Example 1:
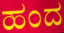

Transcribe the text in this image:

ಹಂದ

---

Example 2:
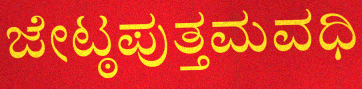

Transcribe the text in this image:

ಜೇಟ್ಠಪುತ್ತಮವಧಿ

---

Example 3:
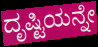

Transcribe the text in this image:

ದೃಷ್ಟಿಯನ್ನೇ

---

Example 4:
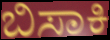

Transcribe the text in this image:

ಬಿಸಾಕಿ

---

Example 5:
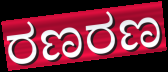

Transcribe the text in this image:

ರಣರಣ